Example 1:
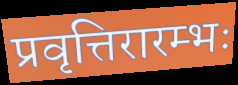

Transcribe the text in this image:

प्रवृत्तिरारम्भः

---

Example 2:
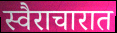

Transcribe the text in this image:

स्वैराचारात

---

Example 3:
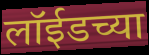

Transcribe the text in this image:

लॉईडच्या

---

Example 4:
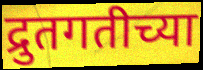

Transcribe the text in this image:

द्रुतगतीच्या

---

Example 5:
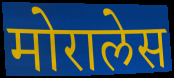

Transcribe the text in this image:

मोरालेस